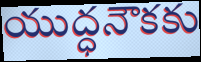
యుద్ధనౌకకు